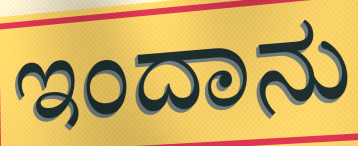
ಇಂದಾನು